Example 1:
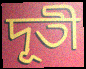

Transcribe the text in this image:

দূতী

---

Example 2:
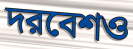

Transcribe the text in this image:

দরবেশও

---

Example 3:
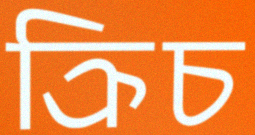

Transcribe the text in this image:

ক্রিচ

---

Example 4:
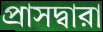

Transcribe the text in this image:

প্রাসদ্বারা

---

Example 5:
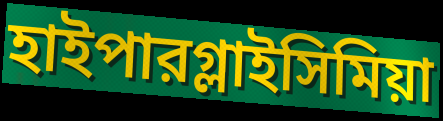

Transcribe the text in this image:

হাইপারগ্লাইসিমিয়া